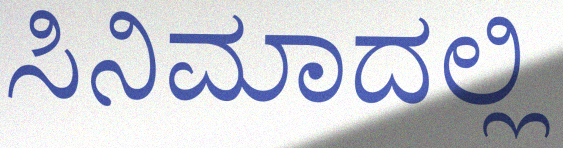
ಸಿನಿಮಾದಲ್ಲಿ